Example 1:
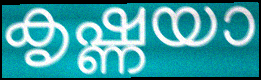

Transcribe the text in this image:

കൃഷ്ണയാ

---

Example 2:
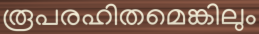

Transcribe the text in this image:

രൂപരഹിതമെങ്കിലും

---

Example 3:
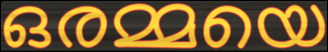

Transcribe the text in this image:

ഒരമ്മയെ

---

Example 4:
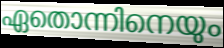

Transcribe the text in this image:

ഏതൊന്നിനെയും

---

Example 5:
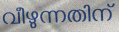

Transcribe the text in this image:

വീഴുന്നതിന്